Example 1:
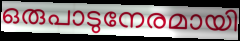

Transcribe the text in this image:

ഒരുപാടുനേരമായി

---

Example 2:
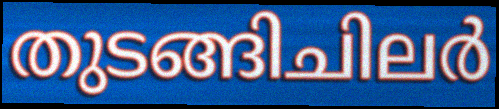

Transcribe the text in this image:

തുടങ്ങിചിലർ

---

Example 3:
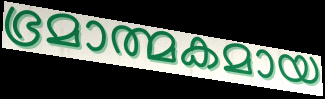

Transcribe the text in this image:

ഭ്രമാത്മകമായ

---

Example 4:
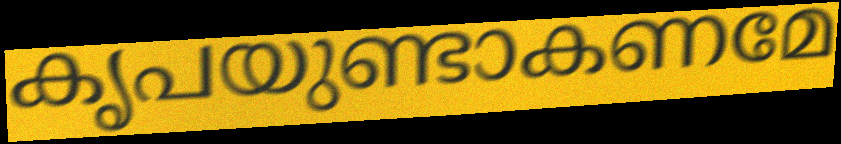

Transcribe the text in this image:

കൃപയുണ്ടാകണമേ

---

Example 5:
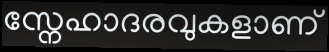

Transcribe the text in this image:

സ്നേഹാദരവുകളാണ്